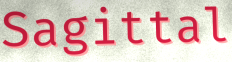
Sagittal